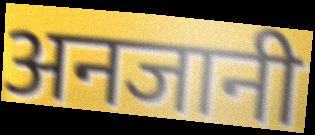
अनजानी